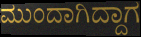
ಮುಂದಾಗಿದ್ದಾಗ